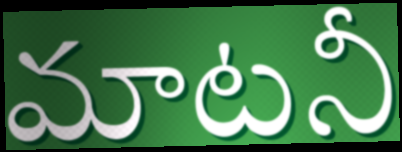
మాటనీ